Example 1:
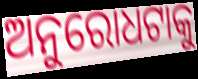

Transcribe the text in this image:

ଅନୁରୋଧଟାକୁ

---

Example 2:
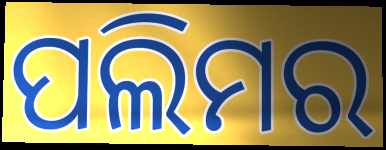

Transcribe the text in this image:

ପଲିମର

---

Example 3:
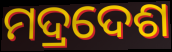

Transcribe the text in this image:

ମଦ୍ରଦେଶ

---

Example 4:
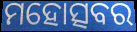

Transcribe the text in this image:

ମହୋତ୍ସବର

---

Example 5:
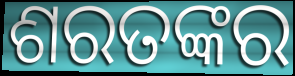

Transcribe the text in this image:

ଶରତଙ୍କର